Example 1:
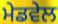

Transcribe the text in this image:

ਮੇਡਵੇਲ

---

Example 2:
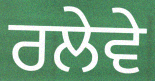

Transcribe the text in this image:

ਰਲੇਵੇ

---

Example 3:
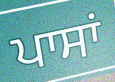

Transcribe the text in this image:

ਪਾਸਾਂ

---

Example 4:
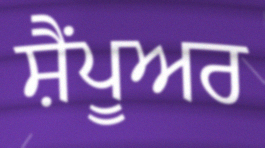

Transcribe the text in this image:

ਸ਼ੈਂਪੂਅਰ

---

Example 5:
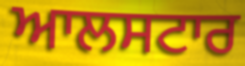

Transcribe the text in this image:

ਆਲਸਟਾਰ